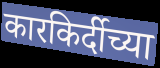
कारकिर्दीच्या